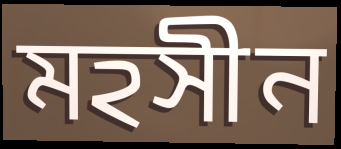
মহসীন